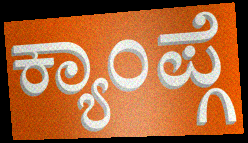
ಕ್ಯಾಂಪ್ಗೆ